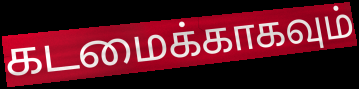
கடமைக்காகவும்